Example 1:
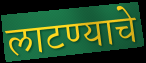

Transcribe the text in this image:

लाटण्याचे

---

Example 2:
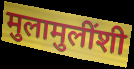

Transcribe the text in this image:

मुलामुलींशी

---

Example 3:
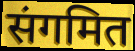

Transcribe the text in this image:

संगमित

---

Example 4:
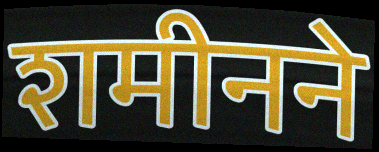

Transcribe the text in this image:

शमीनने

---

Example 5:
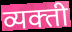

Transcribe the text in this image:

व्यक्‍ती